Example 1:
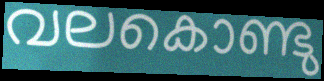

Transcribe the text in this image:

വലകൊണ്ടു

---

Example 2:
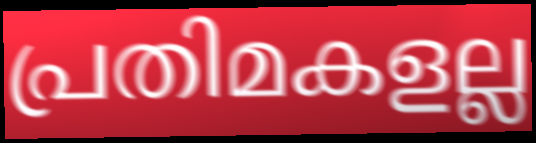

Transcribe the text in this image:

പ്രതിമകളല്ല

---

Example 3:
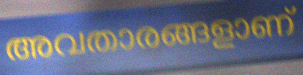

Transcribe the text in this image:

അവതാരങ്ങളാണ്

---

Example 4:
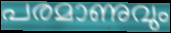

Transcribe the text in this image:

പരമാണുവും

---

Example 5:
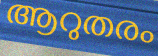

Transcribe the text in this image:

ആറുതരം